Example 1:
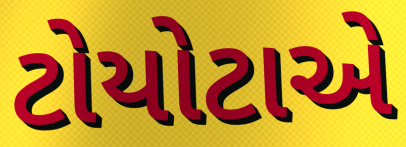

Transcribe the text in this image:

ટોયોટાએ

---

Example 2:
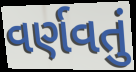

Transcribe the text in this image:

વર્ણવતું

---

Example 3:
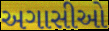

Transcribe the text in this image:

અગાસીઓ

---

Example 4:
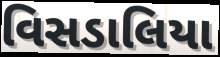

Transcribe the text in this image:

વિસડાલિયા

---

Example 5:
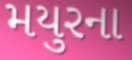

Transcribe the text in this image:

મયુરના